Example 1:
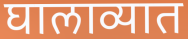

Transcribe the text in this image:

घालाव्यात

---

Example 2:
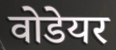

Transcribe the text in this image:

वोडेयर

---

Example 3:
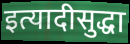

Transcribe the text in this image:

इत्यादीसुद्धा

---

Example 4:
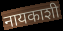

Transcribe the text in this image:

नायकाशी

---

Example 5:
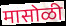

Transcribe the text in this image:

मासोळी